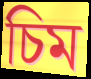
চিম